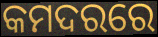
କମଦରରେ